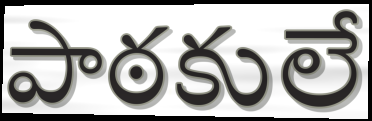
పాఠకులే